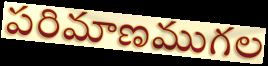
పరిమాణముగల